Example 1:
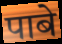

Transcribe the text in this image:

पाबे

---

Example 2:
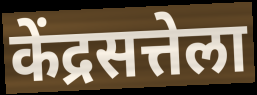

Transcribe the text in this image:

केंद्रसत्तेला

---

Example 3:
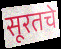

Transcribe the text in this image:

सूरतचे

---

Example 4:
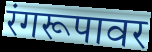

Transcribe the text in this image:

रंगरूपावर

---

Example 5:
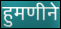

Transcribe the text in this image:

हुमणीने